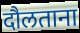
दौलताना